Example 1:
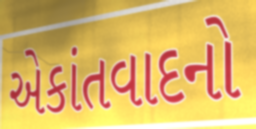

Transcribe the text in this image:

એકાંતવાદનો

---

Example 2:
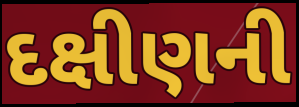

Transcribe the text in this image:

દક્ષીણની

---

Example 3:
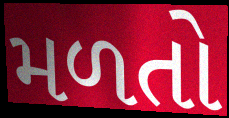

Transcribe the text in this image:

મળતો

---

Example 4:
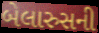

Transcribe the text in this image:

બેલારુસની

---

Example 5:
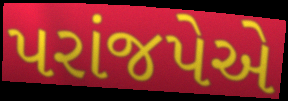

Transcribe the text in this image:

પરાંજપેએ